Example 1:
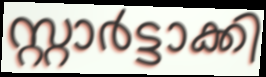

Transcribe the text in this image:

സ്റ്റാർട്ടാക്കി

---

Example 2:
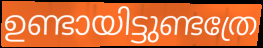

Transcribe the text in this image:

ഉണ്ടായിട്ടുണ്ടത്രേ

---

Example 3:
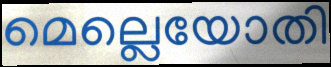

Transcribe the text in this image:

മെല്ലെയോതി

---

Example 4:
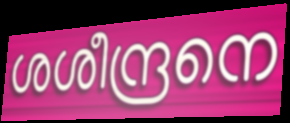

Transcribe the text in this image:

ശശീന്ദ്രനെ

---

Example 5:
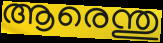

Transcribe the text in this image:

ആരെന്തു